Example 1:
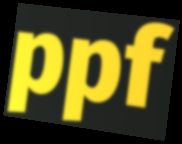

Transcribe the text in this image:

ppf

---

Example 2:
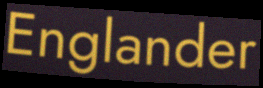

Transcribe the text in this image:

Englander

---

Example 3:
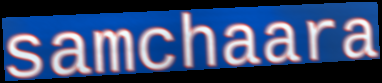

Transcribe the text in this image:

samchaara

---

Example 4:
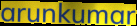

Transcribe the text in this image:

arunkumar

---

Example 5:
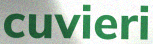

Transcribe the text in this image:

cuvieri